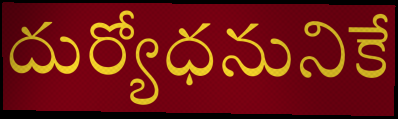
దుర్యోధనునికే